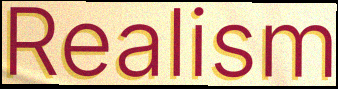
Realism